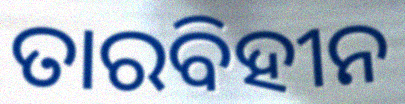
ତାରବିହୀନ